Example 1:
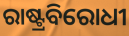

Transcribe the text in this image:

ରାଷ୍ଟ୍ରବିରୋଧୀ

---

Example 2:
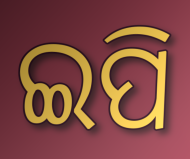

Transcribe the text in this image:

ଇପି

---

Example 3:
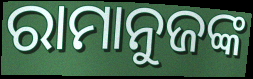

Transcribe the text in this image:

ରାମାନୁଜଙ୍କ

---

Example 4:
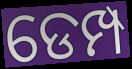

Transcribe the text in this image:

ଡେମ୍ପ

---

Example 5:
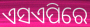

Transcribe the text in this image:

ଏସଏପିରେ